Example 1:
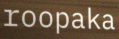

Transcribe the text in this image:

roopaka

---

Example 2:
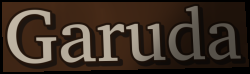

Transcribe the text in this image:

Garuda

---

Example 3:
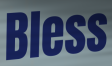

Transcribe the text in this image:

Bless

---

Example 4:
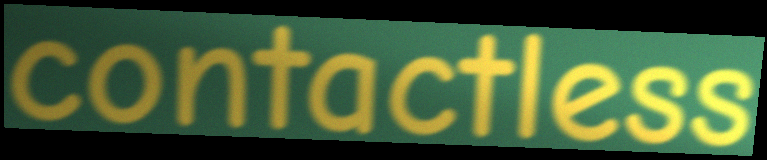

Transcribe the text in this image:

contactless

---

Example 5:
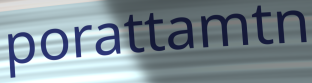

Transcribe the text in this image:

porattamtn